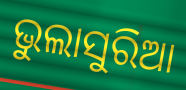
ଭୁଲାସୁରିଆ